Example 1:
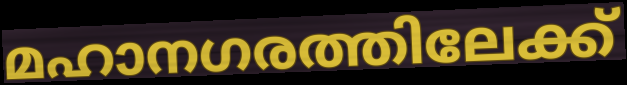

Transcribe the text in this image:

മഹാനഗരത്തിലേക്ക്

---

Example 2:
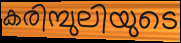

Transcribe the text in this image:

കരിമ്പുലിയുടെ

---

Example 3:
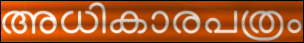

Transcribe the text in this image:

അധികാരപത്രം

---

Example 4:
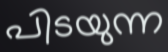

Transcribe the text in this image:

പിടയുന്ന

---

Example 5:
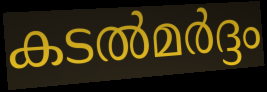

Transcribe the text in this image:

കടൽമർദ്ദം